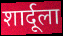
शार्दूला